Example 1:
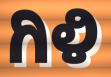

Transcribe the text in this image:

ಗಿಳಿ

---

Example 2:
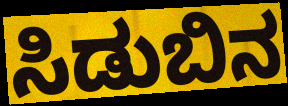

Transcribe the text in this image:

ಸಿಡುಬಿನ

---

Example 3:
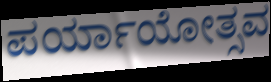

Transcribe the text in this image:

ಪರ್ಯಾಯೋತ್ಸವ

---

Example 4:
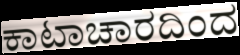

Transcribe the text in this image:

ಕಾಟಾಚಾರದಿಂದ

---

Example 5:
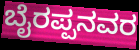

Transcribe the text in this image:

ಬೈರಪ್ಪನವರ